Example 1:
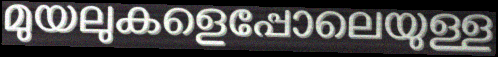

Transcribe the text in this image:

മുയലുകളെപ്പോലെയുള്ള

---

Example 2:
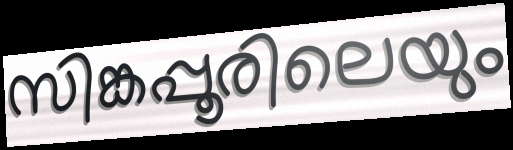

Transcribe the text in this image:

സിങ്കപ്പൂരിലെയും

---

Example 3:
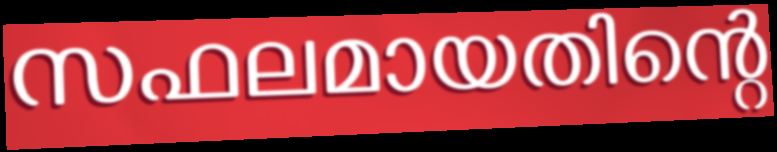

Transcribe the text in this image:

സഫലമായതിന്റെ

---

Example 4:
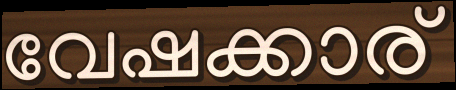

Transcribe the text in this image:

വേഷക്കാര്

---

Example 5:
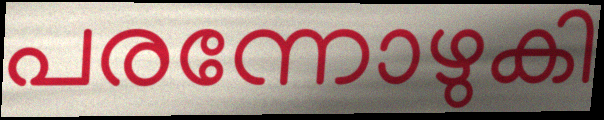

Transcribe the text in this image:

പരന്നോഴുകി